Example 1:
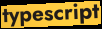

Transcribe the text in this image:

typescript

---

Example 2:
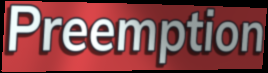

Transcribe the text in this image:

Preemption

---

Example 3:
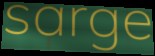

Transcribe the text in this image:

sarge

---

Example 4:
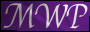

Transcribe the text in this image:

MWP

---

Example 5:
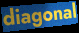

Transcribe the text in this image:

diagonal